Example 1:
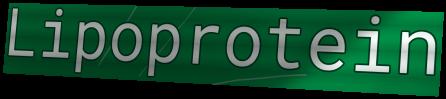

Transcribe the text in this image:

Lipoprotein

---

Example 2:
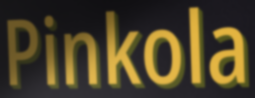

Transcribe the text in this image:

Pinkola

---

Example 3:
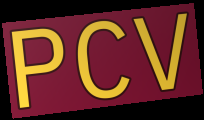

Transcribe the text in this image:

PCV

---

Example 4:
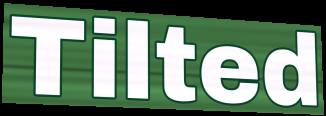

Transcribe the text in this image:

Tilted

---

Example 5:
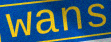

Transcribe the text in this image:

wans